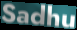
Sadhu